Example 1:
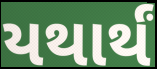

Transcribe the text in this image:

યથાર્થં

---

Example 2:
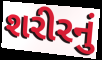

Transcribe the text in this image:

શરીરનું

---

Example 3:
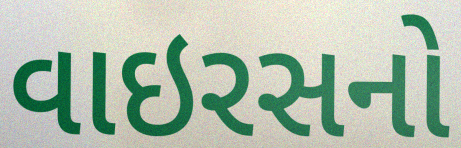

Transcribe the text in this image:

વાઇરસનો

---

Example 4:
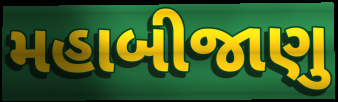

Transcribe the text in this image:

મહાબીજાણુ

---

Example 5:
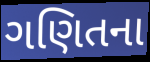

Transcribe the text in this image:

ગણિતના